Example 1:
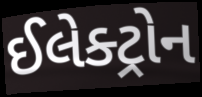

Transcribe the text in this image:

ઈલેક્ટ્રોન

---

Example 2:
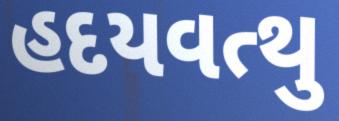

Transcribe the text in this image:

હદયવત્થુ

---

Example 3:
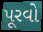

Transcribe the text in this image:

પૂરવો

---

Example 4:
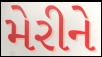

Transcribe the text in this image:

મેરીને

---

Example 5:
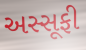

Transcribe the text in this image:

અસ્સૂફી